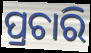
ପ୍ରଚାରି